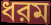
ধরম